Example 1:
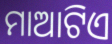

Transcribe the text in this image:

ମାଆଟିଏ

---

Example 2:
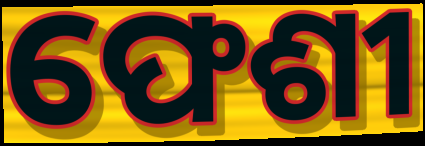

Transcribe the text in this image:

ଫେଶୀ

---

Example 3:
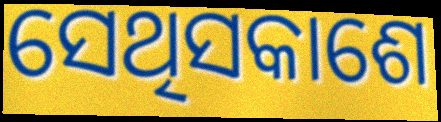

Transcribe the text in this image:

ସେଥିସକାଶେ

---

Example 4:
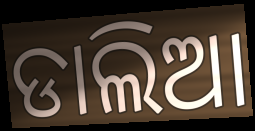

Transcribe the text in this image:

ଡାଲିଆ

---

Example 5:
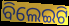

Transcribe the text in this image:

ବିଲେଇଟି